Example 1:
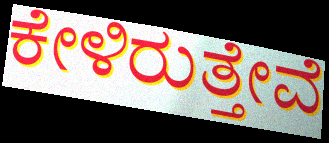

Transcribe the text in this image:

ಕೇಳಿರುತ್ತೇವೆ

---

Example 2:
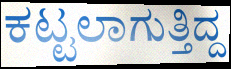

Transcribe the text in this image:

ಕಟ್ಟಲಾಗುತ್ತಿದ್ದ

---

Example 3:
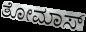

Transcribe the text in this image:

ತೋಮಾಸ್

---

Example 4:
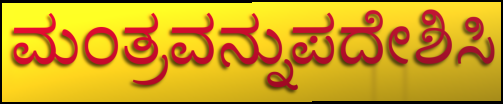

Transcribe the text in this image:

ಮಂತ್ರವನ್ನುಪದೇಶಿಸಿ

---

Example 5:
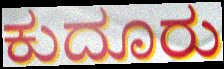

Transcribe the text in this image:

ಕುದೂರು